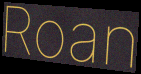
Roan